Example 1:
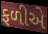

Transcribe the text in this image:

ફળીએ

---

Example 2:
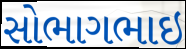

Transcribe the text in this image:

સોભાગભાઇ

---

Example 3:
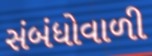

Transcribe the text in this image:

સંબંધોવાળી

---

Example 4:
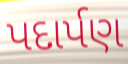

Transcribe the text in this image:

પદાર્પણ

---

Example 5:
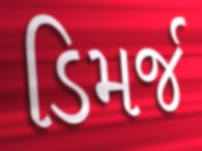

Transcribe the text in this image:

ડિમર્જ